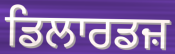
ਡਿਲਾਰਡਜ਼